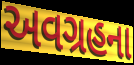
અવગ્રહના